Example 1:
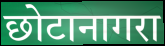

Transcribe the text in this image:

छोटानागरा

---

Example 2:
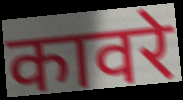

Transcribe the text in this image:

कावरे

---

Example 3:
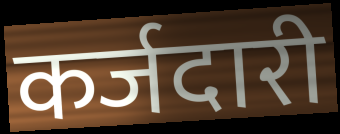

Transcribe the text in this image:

कर्जदारी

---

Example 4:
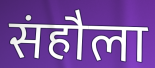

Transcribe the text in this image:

संहौला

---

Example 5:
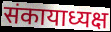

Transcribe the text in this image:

संकायाध्यक्ष